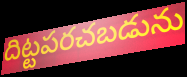
దిట్టపరచబడును